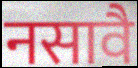
नसावै